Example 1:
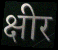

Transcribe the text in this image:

क्षीर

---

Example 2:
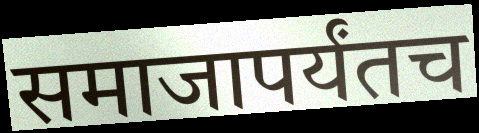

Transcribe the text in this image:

समाजापर्यंतच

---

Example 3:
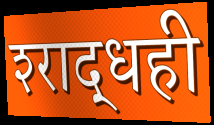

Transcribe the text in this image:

श्राद्धही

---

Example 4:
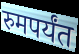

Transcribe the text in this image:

रुमपर्यंत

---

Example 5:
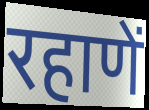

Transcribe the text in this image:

रहाणें